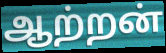
ஆற்றன்